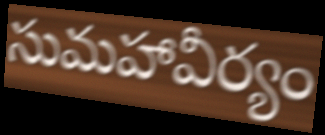
సుమహావీర్యం